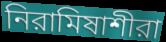
নিরামিষাশীরা